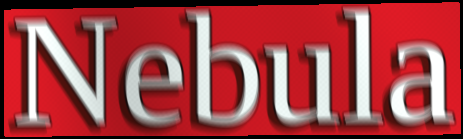
Nebula